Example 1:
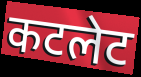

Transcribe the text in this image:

कटलेट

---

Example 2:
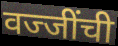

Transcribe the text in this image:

वज्जींची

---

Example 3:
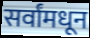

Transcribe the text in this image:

सर्वांमधून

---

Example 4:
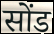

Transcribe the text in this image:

सोंड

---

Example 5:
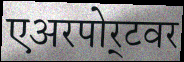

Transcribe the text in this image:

एअरपोर्टवर